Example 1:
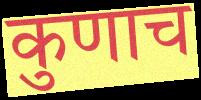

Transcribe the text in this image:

कुणाच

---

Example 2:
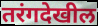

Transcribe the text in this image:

तरंगदेखील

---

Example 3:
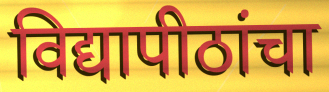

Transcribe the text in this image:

विद्यापीठांचा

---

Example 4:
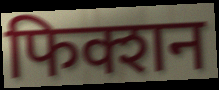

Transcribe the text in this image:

फिक्‍शन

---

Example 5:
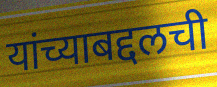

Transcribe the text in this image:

यांच्याबद्दलची